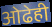
ओढेही